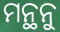
ମନ୍ଥନୁ